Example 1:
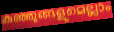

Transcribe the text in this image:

കുഞ്ഞുങ്ങളുമെല്ലാം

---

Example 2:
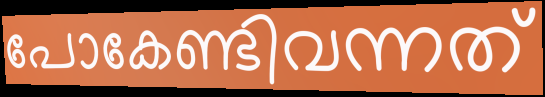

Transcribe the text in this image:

പോകേണ്ടിവന്നത്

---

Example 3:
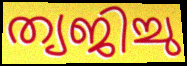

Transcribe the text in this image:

ത്യജിച്ചു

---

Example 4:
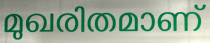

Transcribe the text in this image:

മുഖരിതമാണ്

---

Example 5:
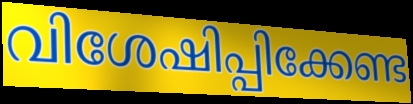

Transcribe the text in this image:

വിശേഷിപ്പിക്കേണ്ട